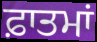
ਫ਼ਾਤਮਾਂ